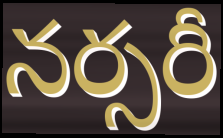
నర్సరీ